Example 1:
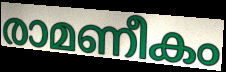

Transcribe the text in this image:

രാമണീകം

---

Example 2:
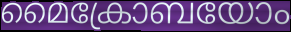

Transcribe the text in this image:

മൈക്രോബയോം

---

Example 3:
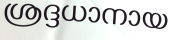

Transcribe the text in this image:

ശ്രദ്ദധാനായ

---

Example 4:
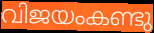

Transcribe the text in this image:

വിജയംകണ്ടു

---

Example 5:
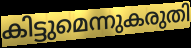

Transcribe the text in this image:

കിട്ടുമെന്നുകരുതി